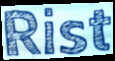
Rist